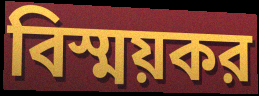
বিস্ময়কর